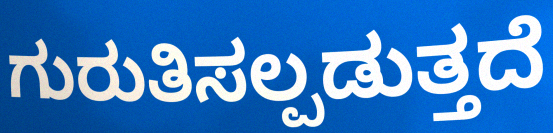
ಗುರುತಿಸಲ್ಪಡುತ್ತದೆ